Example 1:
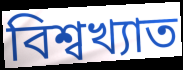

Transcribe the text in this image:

বিশ্বখ্যাত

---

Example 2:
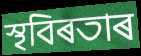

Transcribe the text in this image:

স্থবিৰতাৰ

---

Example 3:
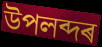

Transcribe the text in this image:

উপলব্দৰ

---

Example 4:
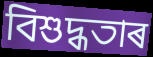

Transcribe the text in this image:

বিশুদ্ধতাৰ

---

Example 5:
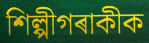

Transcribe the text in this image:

শিল্পীগৰাকীক